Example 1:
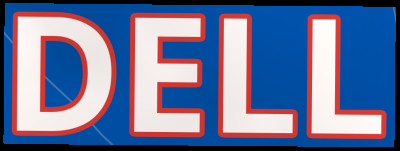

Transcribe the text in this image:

DELL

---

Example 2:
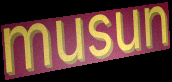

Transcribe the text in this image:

musun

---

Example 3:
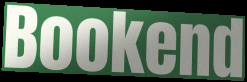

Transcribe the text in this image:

Bookend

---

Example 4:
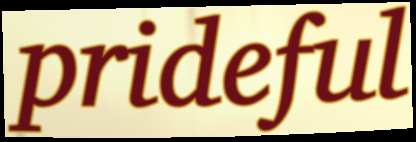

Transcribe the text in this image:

prideful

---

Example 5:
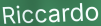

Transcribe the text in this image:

Riccardo